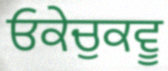
ਓਕੇਚੁਕਵੂ